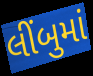
લીંબુમાં